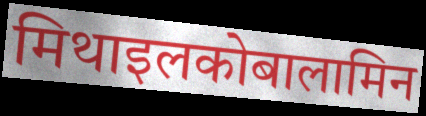
मिथाइलकोबालामिन